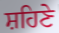
ਸ਼ਹਿਣੇ